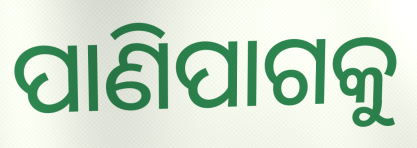
ପାଣିପାଗକୁ